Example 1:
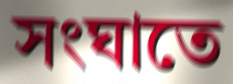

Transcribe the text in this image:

সংঘাতে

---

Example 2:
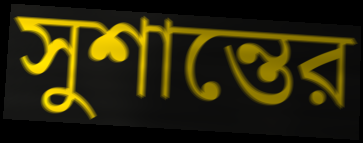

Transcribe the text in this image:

সুশান্তের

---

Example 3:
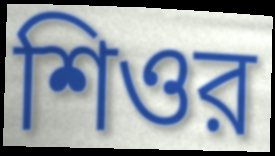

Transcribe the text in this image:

শিওর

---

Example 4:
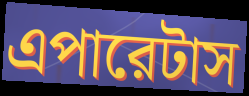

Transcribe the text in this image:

এপারেটাস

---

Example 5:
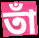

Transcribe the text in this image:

তাঁ